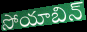
సోయాబిన్